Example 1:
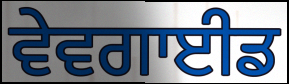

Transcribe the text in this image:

ਵੇਵਗਾਈਡ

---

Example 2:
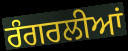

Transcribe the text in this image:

ਰੰਗਰਲੀਆਂ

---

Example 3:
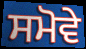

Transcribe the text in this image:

ਸਮੋਵੇ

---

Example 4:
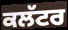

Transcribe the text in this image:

ਕਲੱਟਰ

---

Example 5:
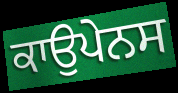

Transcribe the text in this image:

ਕਾਉਪੇਨਸ